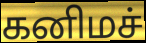
கனிமச்